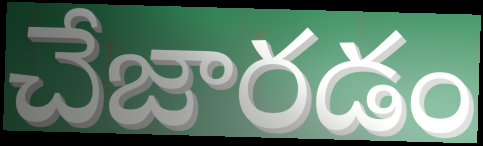
చేజారడం